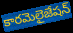
కారమెలైజేషన్